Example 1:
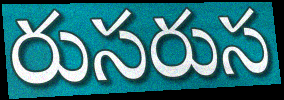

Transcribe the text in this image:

రుసరుస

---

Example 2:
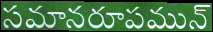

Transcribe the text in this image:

సమానరూపమున్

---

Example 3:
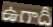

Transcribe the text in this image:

ఉగాదీ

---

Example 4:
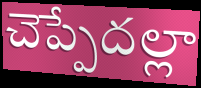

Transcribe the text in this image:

చెప్పేదల్లా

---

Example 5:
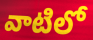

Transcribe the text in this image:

వాటిలో